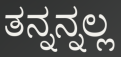
ತನ್ನನ್ನಲ್ಲ